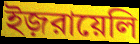
ইজ়রায়েলি